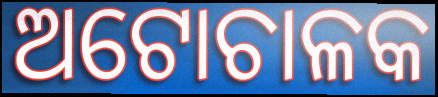
ଅଟୋଚାଳକ